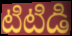
టిటిడి